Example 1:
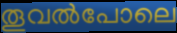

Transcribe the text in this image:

തൂവൽപോലെ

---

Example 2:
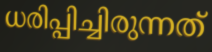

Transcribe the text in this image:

ധരിപ്പിച്ചിരുന്നത്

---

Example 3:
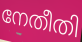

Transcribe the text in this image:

നേതീതി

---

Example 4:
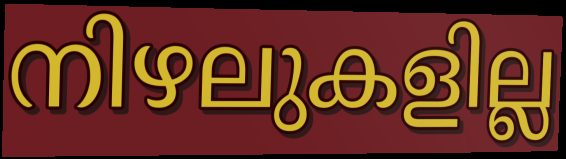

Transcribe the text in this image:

നിഴലുകളില്ല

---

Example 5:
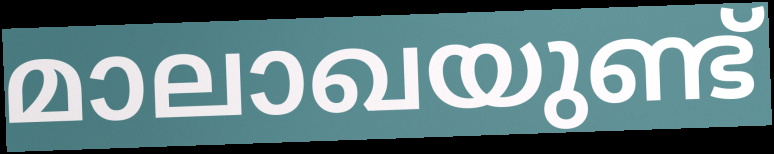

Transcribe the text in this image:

മാലാഖയുണ്ട്